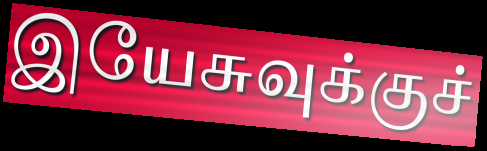
இயேசுவுக்குச்